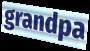
grandpa